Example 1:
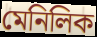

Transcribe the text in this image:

মেনিলিক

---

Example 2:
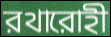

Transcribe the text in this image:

রথারোহী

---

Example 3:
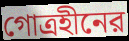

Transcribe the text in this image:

গোত্রহীনের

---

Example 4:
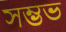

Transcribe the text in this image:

সম্ভভ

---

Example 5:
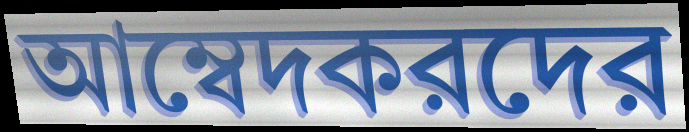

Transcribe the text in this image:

আম্বেদকরদের